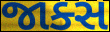
જાક્સ